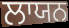
ਲਾਯਨ